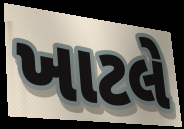
ખાટલે